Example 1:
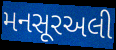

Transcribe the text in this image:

મનસૂરઅલી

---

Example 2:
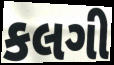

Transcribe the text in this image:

કલગી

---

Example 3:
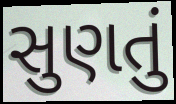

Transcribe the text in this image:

સુણતું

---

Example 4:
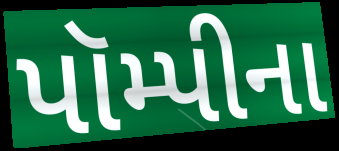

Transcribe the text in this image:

પૉમ્પીના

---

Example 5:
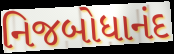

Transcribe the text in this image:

નિજબોધાનંદ